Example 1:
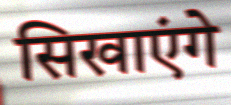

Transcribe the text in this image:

सिखाएंगे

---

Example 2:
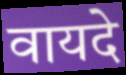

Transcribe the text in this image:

वायदे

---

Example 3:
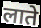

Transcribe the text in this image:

लाते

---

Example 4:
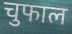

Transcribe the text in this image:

चुफाल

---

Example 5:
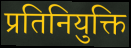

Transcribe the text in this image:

प्रतिनियुक्ति